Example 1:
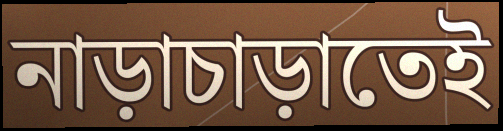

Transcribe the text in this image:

নাড়াচাড়াতেই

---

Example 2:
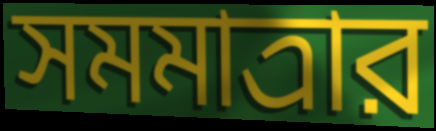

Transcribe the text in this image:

সমমাত্রার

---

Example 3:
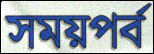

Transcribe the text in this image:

সময়পর্ব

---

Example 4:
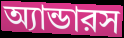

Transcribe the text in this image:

অ্যান্ডারস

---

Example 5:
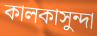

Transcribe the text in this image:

কালকাসুন্দা